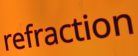
refraction